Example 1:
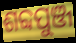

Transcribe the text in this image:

ଶବ୍ଦପୁଞ୍ଜ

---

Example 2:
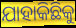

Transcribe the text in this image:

ଯାହାକିଛିକୁ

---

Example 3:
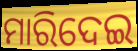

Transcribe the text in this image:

ମାରିଦେଇ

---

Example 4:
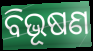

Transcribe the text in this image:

ବିଭୂଷଣ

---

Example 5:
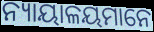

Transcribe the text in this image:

ନ୍ୟାୟାଳୟମାନେ